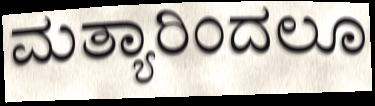
ಮತ್ಯಾರಿಂದಲೂ